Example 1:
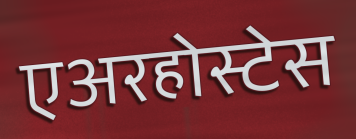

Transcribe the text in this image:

एअरहोस्टेस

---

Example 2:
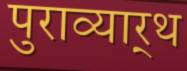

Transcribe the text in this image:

पुराव्यार्थ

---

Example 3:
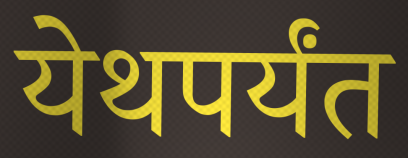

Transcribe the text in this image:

येथपर्यंत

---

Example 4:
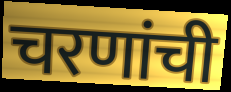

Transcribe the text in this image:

चरणांची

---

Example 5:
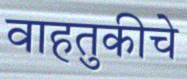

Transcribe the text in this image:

वाहतुकीचे